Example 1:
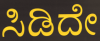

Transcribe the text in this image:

ಸಿಡಿದೇ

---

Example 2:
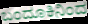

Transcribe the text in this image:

ಬಂದೂಕಿನಿಂದ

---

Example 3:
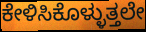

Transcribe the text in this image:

ಕೇಳಿಸಿಕೊಳ್ಳುತ್ತಲೇ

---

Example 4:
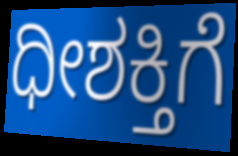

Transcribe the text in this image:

ಧೀಶಕ್ತಿಗೆ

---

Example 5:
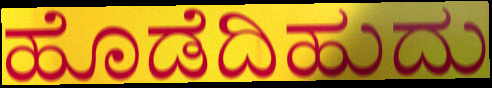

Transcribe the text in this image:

ಹೊಡೆದಿಹುದು